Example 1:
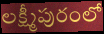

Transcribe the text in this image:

లక్ష్మీపురంలో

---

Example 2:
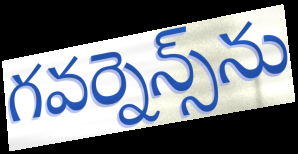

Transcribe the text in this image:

గవర్నెన్స్‌ను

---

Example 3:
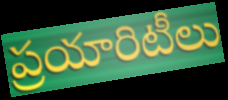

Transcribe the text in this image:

ప్రయారిటీలు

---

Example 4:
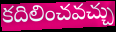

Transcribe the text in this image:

కదిలించవచ్చు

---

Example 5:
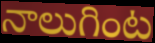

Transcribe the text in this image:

నాలుగింట